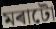
মৰাটো